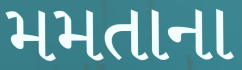
મમતાના